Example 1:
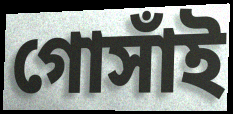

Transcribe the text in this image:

গোসাঁই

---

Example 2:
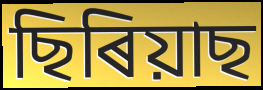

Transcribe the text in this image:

ছিৰিয়াছ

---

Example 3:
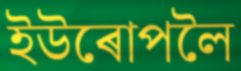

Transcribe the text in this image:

ইউৰোপলৈ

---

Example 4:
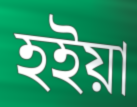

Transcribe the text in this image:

হইয়া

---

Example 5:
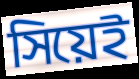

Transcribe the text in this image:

সিয়েই